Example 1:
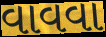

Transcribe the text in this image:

વાવવા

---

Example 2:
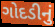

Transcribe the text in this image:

ગોદડીનું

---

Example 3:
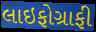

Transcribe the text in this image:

લાઇફોગ્રાફી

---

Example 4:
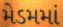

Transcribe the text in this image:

મેડમમાં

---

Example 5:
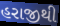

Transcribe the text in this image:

હરાજીથી